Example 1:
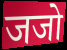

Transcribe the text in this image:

जजो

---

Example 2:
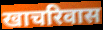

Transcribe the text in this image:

खाचरिवास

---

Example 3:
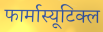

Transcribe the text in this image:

फार्मास्यूटिक्ल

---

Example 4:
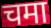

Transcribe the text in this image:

चमा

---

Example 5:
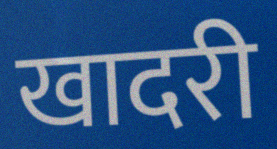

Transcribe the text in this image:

खादरी